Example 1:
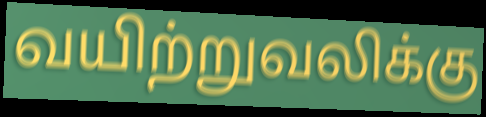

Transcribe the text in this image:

வயிற்றுவலிக்கு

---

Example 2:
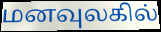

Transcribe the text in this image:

மனவுலகில்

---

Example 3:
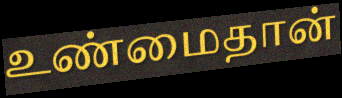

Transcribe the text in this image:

உண்மைதான்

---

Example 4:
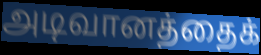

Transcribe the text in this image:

அடிவானத்தைக்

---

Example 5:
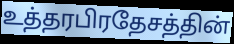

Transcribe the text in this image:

உத்தரபிரதேசத்தின்